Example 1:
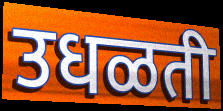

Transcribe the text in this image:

उधळती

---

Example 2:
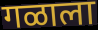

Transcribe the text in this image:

गळाला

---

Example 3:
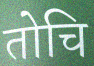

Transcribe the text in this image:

तोचि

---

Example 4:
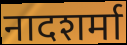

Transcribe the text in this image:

नादशर्मा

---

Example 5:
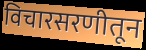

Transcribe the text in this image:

विचारसरणीतून